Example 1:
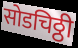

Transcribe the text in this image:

सोडचिठ्ठी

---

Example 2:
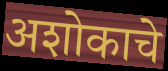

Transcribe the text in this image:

अशोकाचे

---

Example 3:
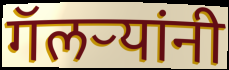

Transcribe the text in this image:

गॅलऱ्यांनी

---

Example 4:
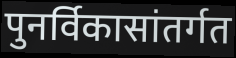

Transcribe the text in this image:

पुनर्विकासांतर्गत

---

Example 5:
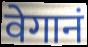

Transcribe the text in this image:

वेगानं